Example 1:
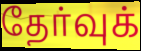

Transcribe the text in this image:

தேர்வுக்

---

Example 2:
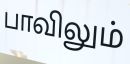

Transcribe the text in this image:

பாவிலும்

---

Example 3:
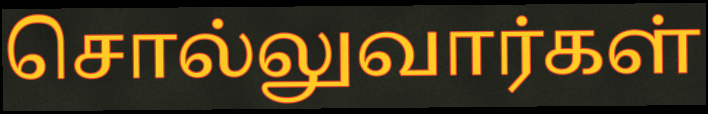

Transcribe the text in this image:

சொல்லுவார்கள்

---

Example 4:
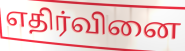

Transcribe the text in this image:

எதிர்வினை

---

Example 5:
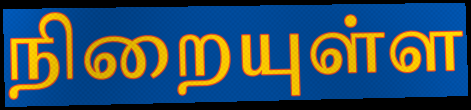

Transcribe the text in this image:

நிறையுள்ள